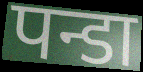
पन्डा